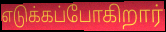
எடுக்கப்போகிறார்